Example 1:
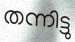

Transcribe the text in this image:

തന്നിട്ടു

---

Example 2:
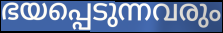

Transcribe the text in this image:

ഭയപ്പെടുന്നവരും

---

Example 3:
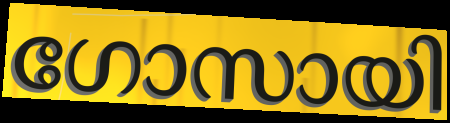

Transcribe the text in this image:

ഗോസായി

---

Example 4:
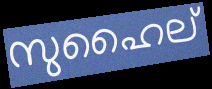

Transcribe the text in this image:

സുഹൈല്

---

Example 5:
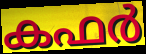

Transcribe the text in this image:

കഫർ